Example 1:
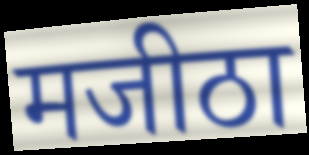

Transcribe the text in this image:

मजीठा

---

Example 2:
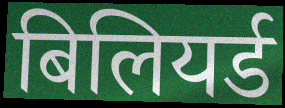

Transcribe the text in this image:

बिलियर्ड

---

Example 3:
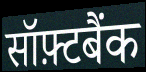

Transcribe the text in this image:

सॉफ़्टबैंक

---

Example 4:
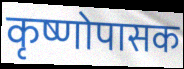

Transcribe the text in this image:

कृष्णोपासक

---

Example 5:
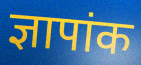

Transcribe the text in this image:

ज्ञापांक